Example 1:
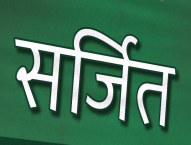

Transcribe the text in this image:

सर्जित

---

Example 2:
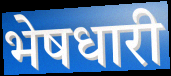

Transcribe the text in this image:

भेषधारी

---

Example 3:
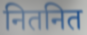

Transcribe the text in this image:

नितनित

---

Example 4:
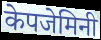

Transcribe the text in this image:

केपजेमिनी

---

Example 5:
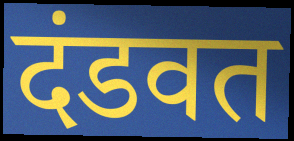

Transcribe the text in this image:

दंडवत